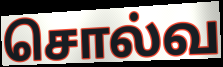
சொல்வ